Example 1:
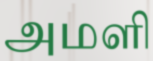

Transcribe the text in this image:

அமளி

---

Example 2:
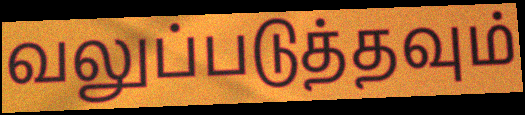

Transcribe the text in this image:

வலுப்படுத்தவும்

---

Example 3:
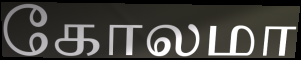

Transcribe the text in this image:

கோலமா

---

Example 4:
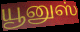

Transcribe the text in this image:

யூனுஸ்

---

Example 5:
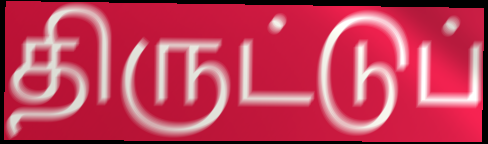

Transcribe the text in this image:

திருட்டுப்